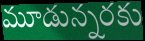
మూడున్నరకు